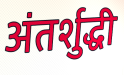
अंतर्शुद्धी